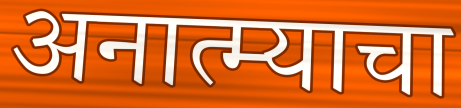
अनात्म्याचा